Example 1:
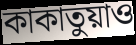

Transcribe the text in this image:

কাকাতুয়াও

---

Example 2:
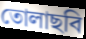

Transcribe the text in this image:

তোলাছবি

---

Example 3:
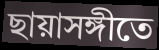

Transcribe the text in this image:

ছায়াসঙ্গীতে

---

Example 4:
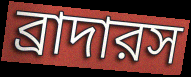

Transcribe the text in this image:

ব্রাদারস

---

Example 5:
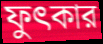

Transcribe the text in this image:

ফুৎকার